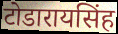
टोडारायसिंह